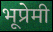
भूप्रेमी